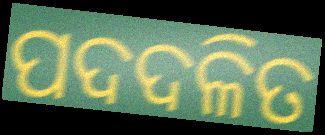
ପଦଦଳିତ